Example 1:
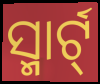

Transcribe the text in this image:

ସ୍ମାର୍ଟ୍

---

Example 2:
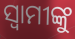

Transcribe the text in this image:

ସ୍ୱାମୀଙ୍କୁ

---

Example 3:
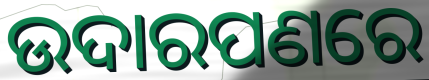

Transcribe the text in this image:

ଉଦାରପଣରେ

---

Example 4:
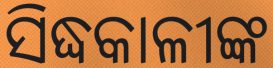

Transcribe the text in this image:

ସିଦ୍ଧକାଳୀଙ୍କ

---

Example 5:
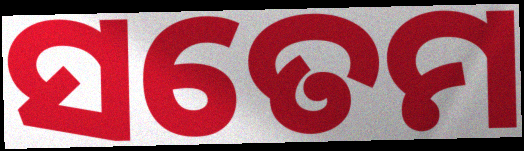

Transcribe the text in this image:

ସତେମ